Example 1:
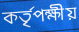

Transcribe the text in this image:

কর্তৃপক্ষীয়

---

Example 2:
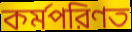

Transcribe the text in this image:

কর্মপরিণত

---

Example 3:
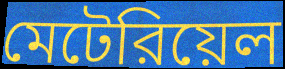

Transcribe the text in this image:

মেটেরিয়েল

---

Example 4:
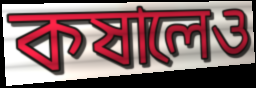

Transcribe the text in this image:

কষালেও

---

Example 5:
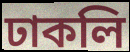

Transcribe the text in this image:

ঢাকলি